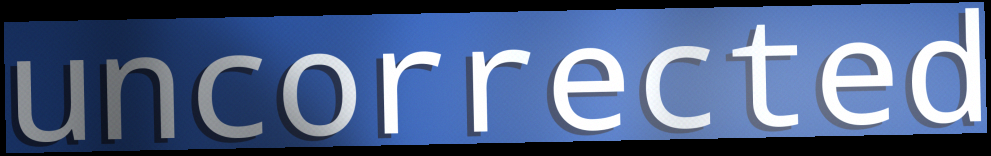
uncorrected